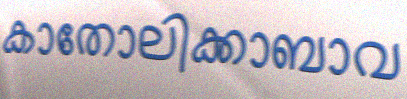
കാതോലിക്കാബാവ